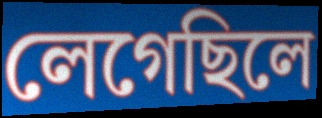
লেগেছিলে